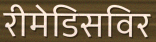
रीमेडिसविर